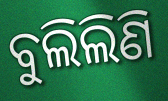
ବୁଲିଲିଣି